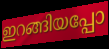
ഇറങ്ങിയപ്പോ